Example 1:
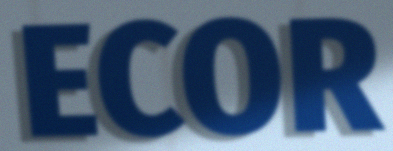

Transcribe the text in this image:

ECOR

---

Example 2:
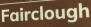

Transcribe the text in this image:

Fairclough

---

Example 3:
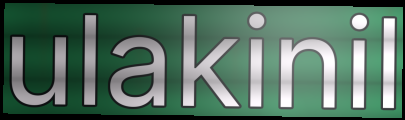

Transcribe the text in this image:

ulakinil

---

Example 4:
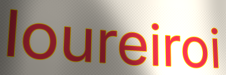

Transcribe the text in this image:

loureiroi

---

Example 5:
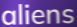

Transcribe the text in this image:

aliens